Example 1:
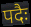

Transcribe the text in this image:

पदैः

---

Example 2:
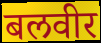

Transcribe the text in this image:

बलवीर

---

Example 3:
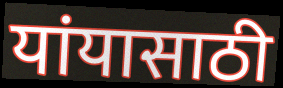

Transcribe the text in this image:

यांयासाठी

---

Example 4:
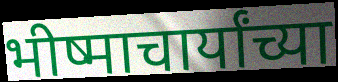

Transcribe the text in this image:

भीष्माचार्यांच्या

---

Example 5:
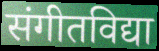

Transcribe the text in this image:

संगीतविद्या